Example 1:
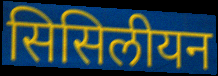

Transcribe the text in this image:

सिसिलीयन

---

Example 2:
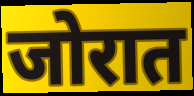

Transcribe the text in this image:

जोरात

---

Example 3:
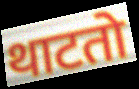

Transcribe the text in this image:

थाटतो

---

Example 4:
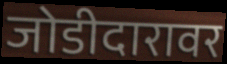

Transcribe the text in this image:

जोडीदारावर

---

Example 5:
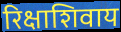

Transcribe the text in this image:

रिक्षाशिवाय